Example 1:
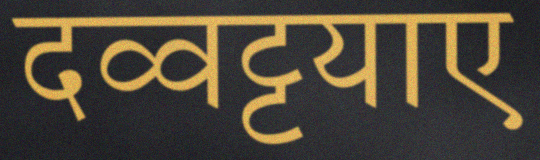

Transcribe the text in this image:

दव्वट्टयाए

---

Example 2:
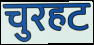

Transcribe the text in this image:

चुरहट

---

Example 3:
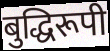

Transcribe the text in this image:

बुद्धिरूपी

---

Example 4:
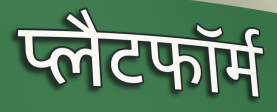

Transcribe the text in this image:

प्लैटफॉर्म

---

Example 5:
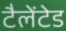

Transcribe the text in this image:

टैलेंटेड